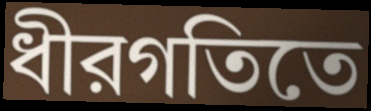
ধীরগতিতে